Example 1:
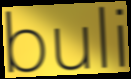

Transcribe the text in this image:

buli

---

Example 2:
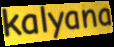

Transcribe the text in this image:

kalyana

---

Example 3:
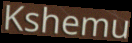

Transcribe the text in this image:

Kshemu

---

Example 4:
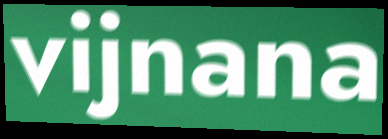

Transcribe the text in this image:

vijnana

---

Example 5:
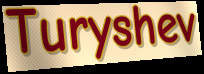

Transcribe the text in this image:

Turyshev